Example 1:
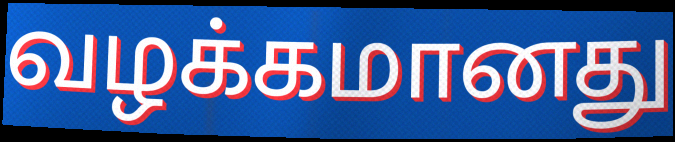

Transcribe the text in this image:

வழக்கமானது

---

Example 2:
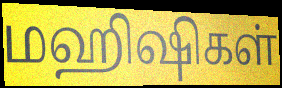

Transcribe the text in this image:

மஹிஷிகள்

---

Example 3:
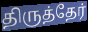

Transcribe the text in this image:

திருத்தேர்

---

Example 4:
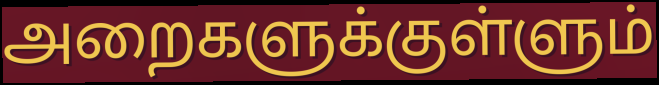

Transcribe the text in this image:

அறைகளுக்குள்ளும்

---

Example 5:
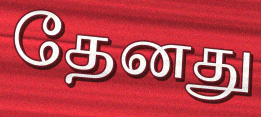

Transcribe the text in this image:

தேனது